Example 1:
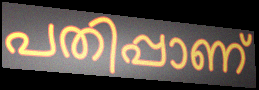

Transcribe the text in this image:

പതിപ്പാണ്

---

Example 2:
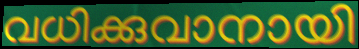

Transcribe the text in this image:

വധിക്കുവാനായി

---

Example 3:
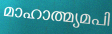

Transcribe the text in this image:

മാഹാത്മ്യമപി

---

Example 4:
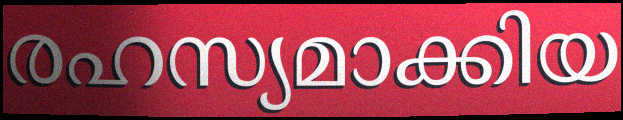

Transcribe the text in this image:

രഹസ്യമാക്കിയ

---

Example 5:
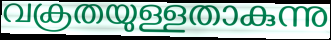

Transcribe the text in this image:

വക്രതയുള്ളതാകുന്നു